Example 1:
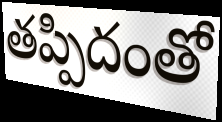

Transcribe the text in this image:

తప్పిదంతో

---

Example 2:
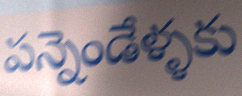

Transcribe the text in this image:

పన్నెండేళ్ళకు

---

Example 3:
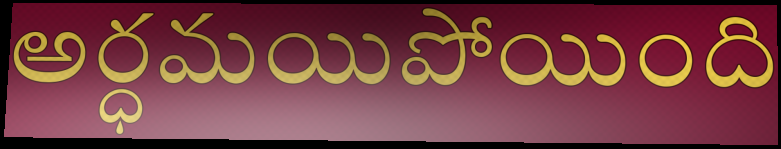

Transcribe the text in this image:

అర్ధమయిపోయింది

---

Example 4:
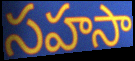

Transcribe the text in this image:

సహసా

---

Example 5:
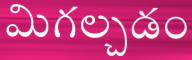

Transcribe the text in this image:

మిగల్చడం